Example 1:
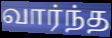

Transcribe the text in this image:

வார்ந்த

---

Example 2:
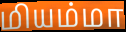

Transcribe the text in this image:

மியம்மா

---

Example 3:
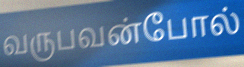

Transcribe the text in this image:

வருபவன்போல்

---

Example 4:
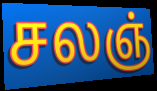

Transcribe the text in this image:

சலஞ்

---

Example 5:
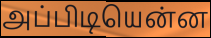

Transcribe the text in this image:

அப்பிடியென்ன